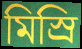
মিস্রি